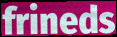
frineds